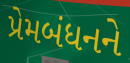
પ્રેમબંધનને